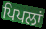
ਪਿਪਲਾਂ